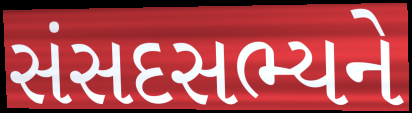
સંસદસભ્યને